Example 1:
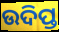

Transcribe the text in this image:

ଉଦିପ୍ତ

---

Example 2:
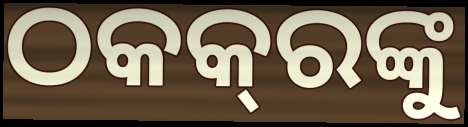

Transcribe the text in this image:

ଠକକ୍‌ରଙ୍କୁ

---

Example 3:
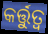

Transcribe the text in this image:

କର୍ତ୍ତୁତ୍ୱ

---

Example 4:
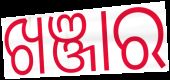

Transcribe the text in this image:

ଖଞ୍ଜାର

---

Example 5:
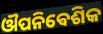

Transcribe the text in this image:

ଔପନିଵେଶିକ